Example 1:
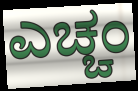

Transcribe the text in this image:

ಎಚ್ಚಂ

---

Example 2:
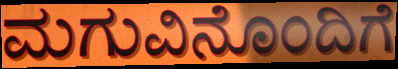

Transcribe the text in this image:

ಮಗುವಿನೊಂದಿಗೆ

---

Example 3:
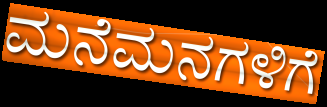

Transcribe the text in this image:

ಮನೆಮನಗಳಿಗೆ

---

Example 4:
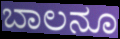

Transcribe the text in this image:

ಬಾಲನೂ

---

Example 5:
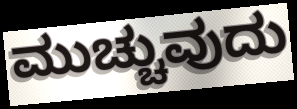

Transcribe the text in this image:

ಮುಚ್ಚುವುದು